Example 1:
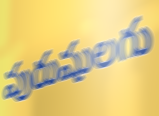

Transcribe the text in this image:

పురుషులగు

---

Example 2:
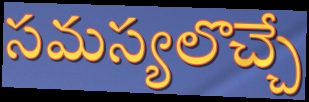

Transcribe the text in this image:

సమస్యలొచ్చే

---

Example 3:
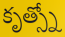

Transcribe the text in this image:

కృత్స్నో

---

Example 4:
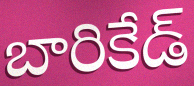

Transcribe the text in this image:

బారికేడ్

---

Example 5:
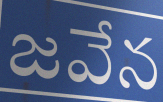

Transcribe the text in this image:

జవేన